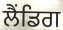
ਲੈਂਡਿਗ